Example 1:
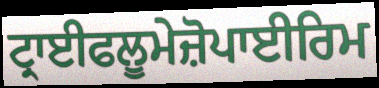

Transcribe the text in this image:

ਟ੍ਰਾਈਫਲੂਮੇਜ਼ੋਪਾਈਰਿਮ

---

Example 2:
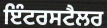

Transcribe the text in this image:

ਇੰਟਰਸਟੈਲਰ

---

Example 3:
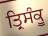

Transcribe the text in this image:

ਤ੍ਰਿਸੰਕੂ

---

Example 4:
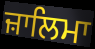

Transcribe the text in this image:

ਜ਼ਾਲਿਮਾ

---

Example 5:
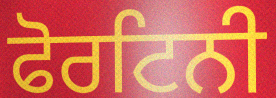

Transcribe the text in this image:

ਫੋਰਟਿਨੀ